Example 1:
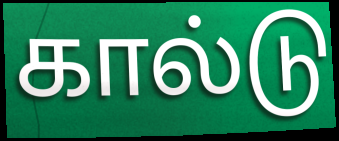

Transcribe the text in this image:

கால்டு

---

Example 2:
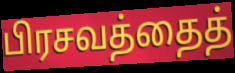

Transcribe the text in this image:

பிரசவத்தைத்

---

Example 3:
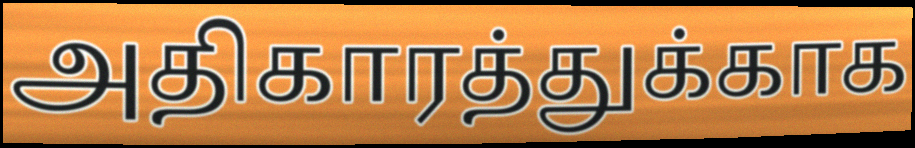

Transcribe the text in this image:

அதிகாரத்துக்காக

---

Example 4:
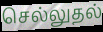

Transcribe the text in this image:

செல்லுதல்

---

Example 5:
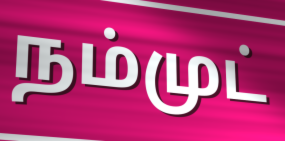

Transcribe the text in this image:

நம்முட்